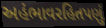
અહંભાવરહિતપણું